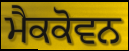
ਮੈਕਕੋਵਨ